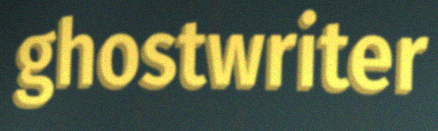
ghostwriter